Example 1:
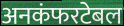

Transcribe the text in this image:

अनकंफरटेबल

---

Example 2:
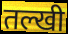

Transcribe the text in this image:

तल्‍खी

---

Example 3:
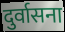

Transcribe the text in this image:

दुर्वासना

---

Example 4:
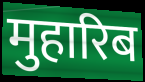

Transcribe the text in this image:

मुहारिब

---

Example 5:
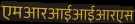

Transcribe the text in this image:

एमआरआईआईआरएस